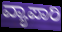
ವ್ಯಾಪಾರಿ